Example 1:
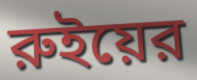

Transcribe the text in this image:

রুইয়ের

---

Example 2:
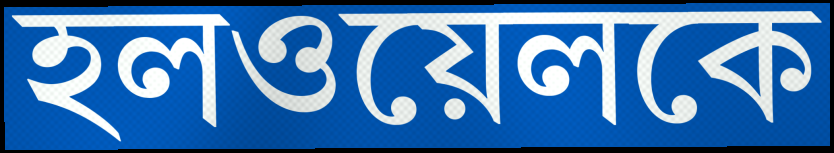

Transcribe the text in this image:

হলওয়েলকে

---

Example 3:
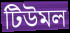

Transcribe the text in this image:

টিউমল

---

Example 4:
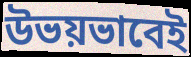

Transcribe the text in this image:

উভয়ভাবেই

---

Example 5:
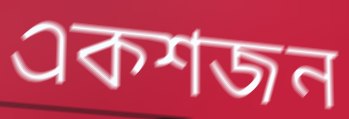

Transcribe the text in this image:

একশজন